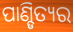
ପାଣ୍ଡିତ୍ୟର